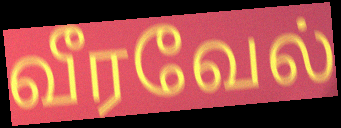
வீரவேல்